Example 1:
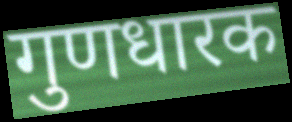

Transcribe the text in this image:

गुणधारक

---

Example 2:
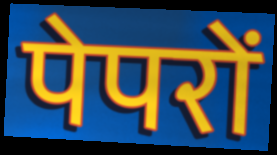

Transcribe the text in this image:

पेपरों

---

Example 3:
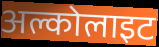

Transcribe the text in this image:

अल्कोलाइट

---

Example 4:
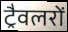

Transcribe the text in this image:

ट्रैवलरों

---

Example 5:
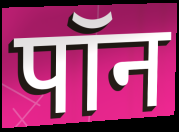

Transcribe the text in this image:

पॉन